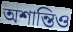
অশান্তিও